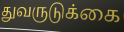
துவருடுக்கை